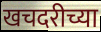
खचदरीच्या